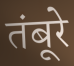
तंबूरे